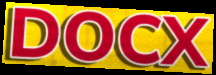
DOCX